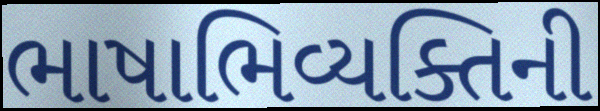
ભાષાભિવ્યક્તિની